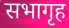
सभागृह